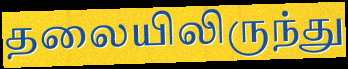
தலையிலிருந்து